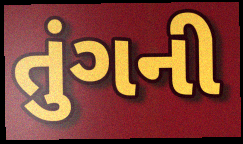
તુંગની